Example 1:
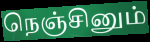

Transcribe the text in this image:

நெஞ்சினும்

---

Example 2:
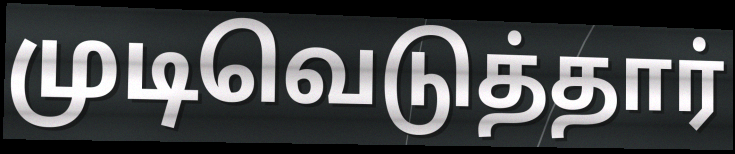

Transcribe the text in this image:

முடிவெடுத்தார்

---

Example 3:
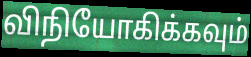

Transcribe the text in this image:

விநியோகிக்கவும்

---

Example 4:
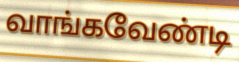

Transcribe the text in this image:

வாங்கவேண்டி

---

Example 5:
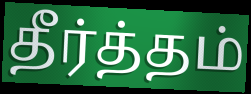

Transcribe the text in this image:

தீர்த்தம்